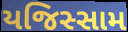
યજિસ્સામ